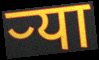
ऱ्या